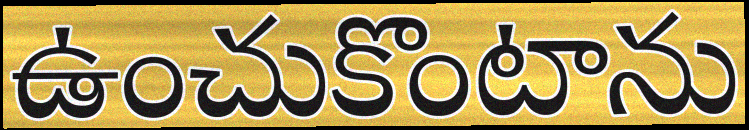
ఉంచుకొంటాను